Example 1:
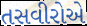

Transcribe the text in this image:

તસવીરોએ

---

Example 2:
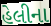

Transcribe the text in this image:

હેલીના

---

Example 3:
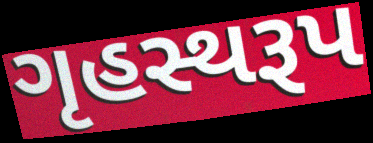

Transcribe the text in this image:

ગૃહસ્થરૂપ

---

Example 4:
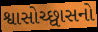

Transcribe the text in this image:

શ્વાસોચ્છ્વાસનો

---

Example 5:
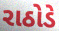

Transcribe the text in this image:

રાઠોડે